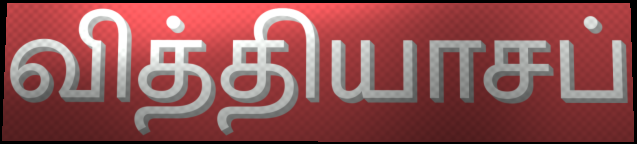
வித்தியாசப்